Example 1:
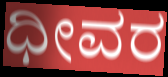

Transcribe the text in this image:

ಧೀವರ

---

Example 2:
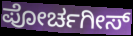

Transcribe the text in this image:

ಪೋರ್ಚಗೀಸ್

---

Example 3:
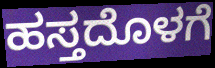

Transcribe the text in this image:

ಹಸ್ತದೊಳಗೆ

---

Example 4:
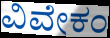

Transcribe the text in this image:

ವಿವೇಕಂ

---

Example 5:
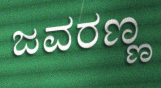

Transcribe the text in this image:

ಜವರಣ್ಣ